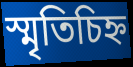
স্মৃতিচিহ্ন